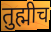
तुह्मीच